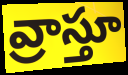
వ్రాస్తూ